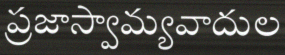
ప్రజాస్వామ్యవాదుల